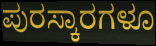
ಪುರಸ್ಕಾರಗಳೂ